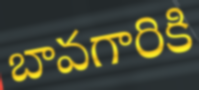
బావగారికి